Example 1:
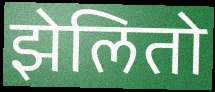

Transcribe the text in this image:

झेलितो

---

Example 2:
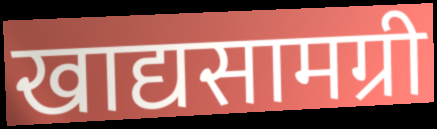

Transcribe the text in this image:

खाद्यसामग्री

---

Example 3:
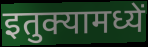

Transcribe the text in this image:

इतुक्यामध्यें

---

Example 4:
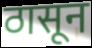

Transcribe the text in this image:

ठासून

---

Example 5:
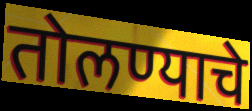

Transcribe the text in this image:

तोलण्याचे